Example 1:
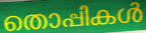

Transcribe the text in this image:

തൊപ്പികൾ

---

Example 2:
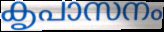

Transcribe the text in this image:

കൃപാസനം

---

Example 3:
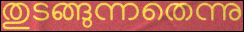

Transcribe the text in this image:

തുടങ്ങുന്നതെന്നു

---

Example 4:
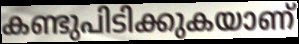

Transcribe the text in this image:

കണ്ടുപിടിക്കുകയാണ്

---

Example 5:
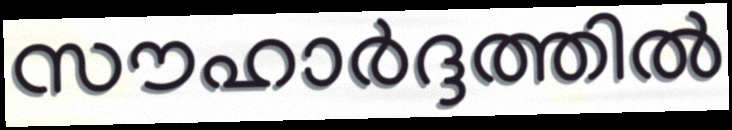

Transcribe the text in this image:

സൗഹാർദ്ദത്തിൽ